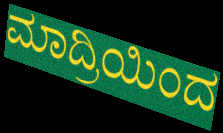
ಮಾದ್ರಿಯಿಂದ